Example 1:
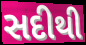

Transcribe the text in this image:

સદીથી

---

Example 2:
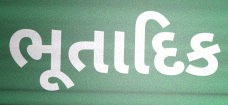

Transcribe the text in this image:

ભૂતાદિક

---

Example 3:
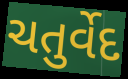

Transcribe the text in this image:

ચતુર્વેદ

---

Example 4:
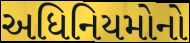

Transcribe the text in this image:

અધિનિયમોનો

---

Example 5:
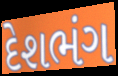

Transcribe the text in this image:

દેશભંગ